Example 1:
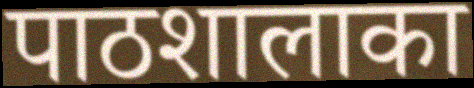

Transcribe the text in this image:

पाठशालाका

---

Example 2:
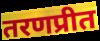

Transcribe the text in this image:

तरणप्रीत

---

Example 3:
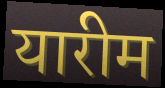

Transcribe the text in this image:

यारीम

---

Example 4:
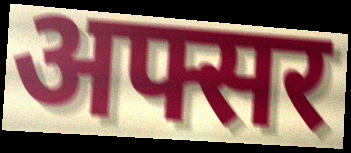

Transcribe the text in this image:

अफ्सर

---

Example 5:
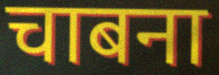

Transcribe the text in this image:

चाबना